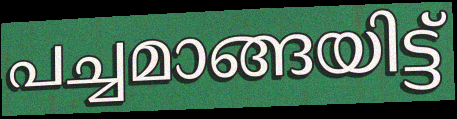
പച്ചമാങ്ങയിട്ട്